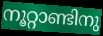
നൂറ്റാണ്ടിനു